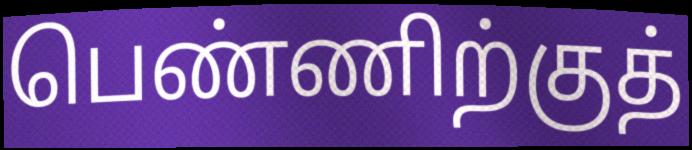
பெண்ணிற்குத்